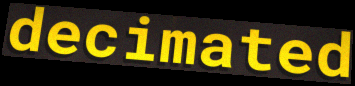
decimated